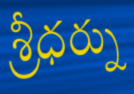
శ్రీధర్ను